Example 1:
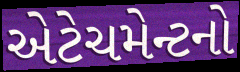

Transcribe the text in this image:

એટેચમેન્ટનો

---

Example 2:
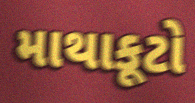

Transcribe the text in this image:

માથાકૂટો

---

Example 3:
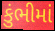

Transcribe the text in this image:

કુંભીમાં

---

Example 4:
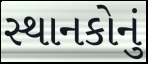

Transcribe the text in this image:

સ્થાનકોનું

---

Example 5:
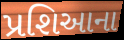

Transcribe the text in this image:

પ્રશિઆના